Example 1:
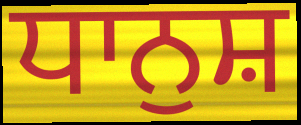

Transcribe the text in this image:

ਧਾਨੁਸ਼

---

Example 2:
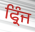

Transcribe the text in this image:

ਫ੍ਰਿੰਜ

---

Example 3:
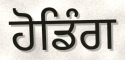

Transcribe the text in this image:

ਹੋਡਿੰਗ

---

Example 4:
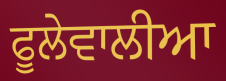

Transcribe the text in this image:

ਫੂਲੇਵਾਲੀਆ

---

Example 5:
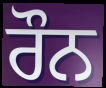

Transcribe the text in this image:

ਰੌਨ